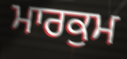
ਮਾਰਕੁਮ